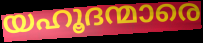
യഹൂദന്മാരെ